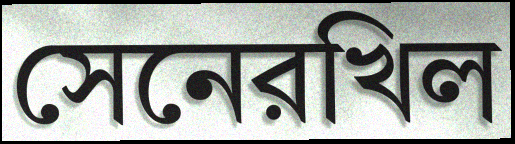
সেনেরখিল